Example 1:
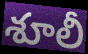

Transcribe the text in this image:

శూలీ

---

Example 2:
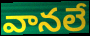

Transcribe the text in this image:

వానలే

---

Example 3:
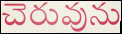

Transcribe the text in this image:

చెరువును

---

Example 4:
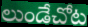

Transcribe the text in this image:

లుండేచోట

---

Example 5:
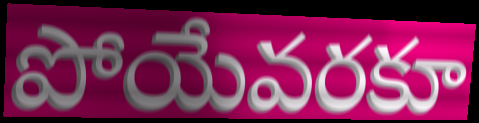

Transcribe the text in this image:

పోయేవరకూ